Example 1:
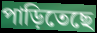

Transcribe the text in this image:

পাড়িতেছে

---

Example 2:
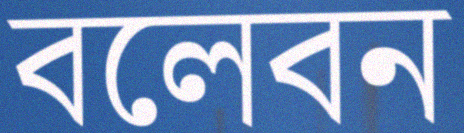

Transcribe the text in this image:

বলেবন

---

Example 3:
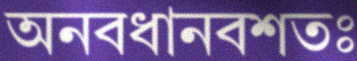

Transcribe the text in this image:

অনবধানবশতঃ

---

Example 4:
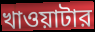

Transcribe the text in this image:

খাওয়াটার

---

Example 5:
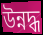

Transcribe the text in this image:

উন্নদ্ধ